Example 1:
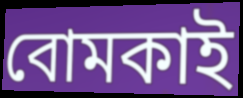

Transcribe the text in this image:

বোমকাই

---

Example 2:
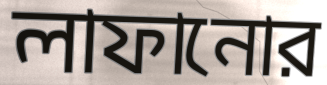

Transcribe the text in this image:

লাফানোর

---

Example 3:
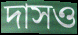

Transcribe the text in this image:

দাসও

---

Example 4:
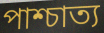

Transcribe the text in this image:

পাশ্চাত্য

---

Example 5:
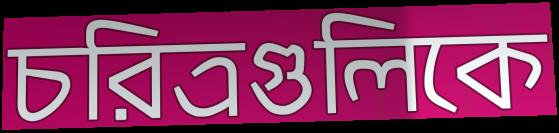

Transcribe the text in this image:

চরিত্রগুলিকে